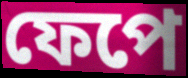
ফেপে